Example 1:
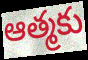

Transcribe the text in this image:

ఆత్మకు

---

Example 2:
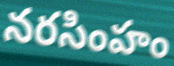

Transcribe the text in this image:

నరసింహం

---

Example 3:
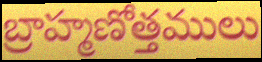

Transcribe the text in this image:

బ్రాహ్మణోత్తములు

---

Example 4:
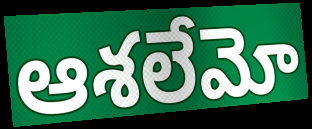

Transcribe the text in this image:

ఆశలేమో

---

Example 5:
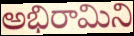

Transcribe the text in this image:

అభిరామిని